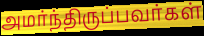
அமர்ந்திருப்பவர்கள்